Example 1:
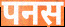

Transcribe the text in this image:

पनस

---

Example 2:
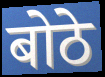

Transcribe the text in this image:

बोठे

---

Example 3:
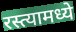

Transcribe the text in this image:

रस्त्यामध्ये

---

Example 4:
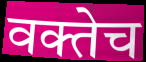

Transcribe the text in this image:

वक्तेच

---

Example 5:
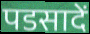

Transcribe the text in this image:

पडसादें